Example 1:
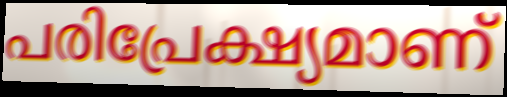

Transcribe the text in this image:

പരിപ്രേക്ഷ്യമാണ്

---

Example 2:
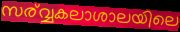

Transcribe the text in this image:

സര്വ്വകലാശാലയിലെ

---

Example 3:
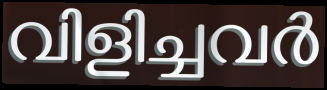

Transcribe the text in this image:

വിളിച്ചവർ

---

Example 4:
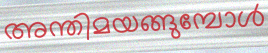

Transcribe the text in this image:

അന്തിമയങ്ങുമ്പോൾ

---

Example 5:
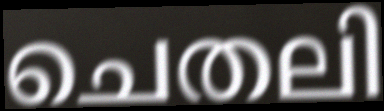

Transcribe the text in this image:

ചെതലി